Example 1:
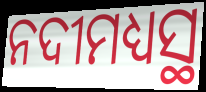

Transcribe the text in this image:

ନଦୀମଧ୍ୟସ୍ଥ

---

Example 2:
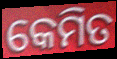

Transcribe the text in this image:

କେମିତ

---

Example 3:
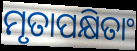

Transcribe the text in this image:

ମୃତାପକ୍ଷିତାଂ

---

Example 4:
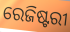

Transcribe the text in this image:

ରେଜିଷ୍ଟରୀ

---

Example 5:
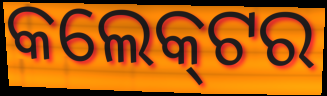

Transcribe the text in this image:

କଲେକ୍‌ଟର